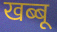
खब्बू